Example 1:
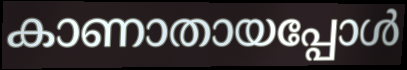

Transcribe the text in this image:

കാണാതായപ്പോൾ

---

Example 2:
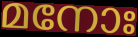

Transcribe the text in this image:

മനോഃ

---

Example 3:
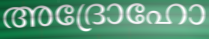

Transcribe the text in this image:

അദ്രോഹോ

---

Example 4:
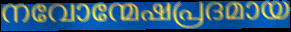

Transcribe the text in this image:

നവോന്മേഷപ്രദമായ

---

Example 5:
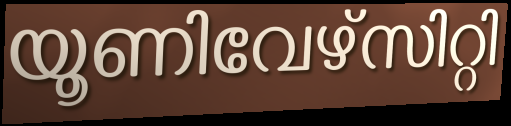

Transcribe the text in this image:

യൂണിവേഴ്സിറ്റി